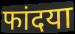
फांदया